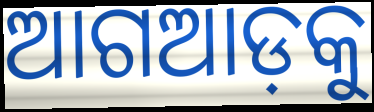
ଆଗଆଡ଼କୁ